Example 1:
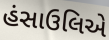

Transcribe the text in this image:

હંસાઉલિએ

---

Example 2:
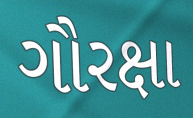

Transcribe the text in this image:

ગૌરક્ષા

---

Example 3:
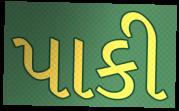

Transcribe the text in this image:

પાકી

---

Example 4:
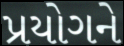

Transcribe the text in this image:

પ્રયોગને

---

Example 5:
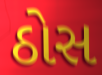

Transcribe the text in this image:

ઠોસ